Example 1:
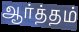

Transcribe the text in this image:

ஆர்த்தம்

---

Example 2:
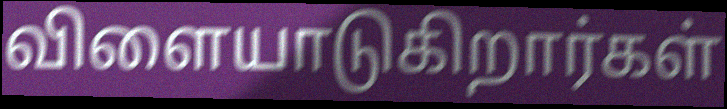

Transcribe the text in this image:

விளையாடுகிறார்கள்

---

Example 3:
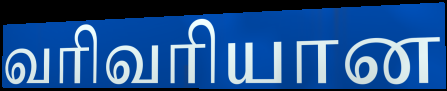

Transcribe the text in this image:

வரிவரியான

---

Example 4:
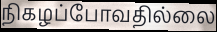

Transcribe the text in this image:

நிகழப்போவதில்லை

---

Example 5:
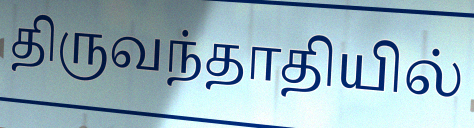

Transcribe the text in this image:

திருவந்தாதியில்